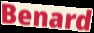
Benard